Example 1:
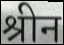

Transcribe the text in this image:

श्रीन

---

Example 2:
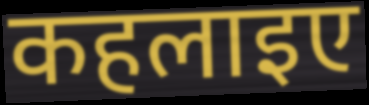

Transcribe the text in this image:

कहलाइए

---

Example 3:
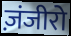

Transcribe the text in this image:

ज़ंजीरो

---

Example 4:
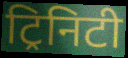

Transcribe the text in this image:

ट्रिनिटी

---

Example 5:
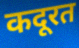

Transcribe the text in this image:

कदूरत